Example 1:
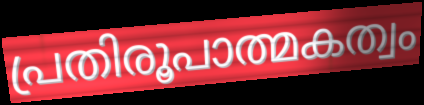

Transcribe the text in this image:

പ്രതിരൂപാത്മകത്വം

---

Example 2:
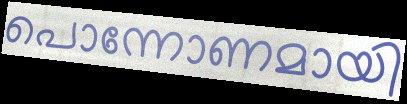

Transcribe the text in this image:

പൊന്നോണമായി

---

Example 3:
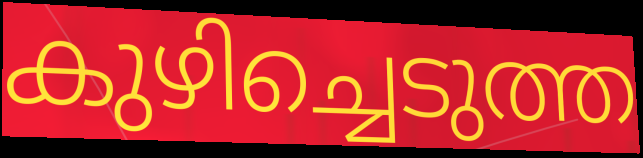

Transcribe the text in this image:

കുഴിച്ചെടുത്ത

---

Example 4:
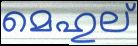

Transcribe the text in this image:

മെഹുല്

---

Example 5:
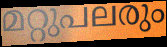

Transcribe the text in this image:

മറ്റുപലരും